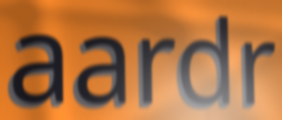
aardr